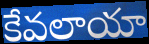
కేవలాయా